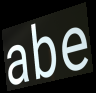
abe